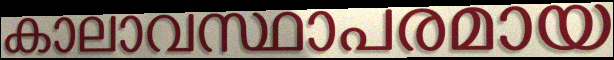
കാലാവസ്ഥാപരമായ